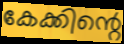
കേക്കിന്റെ